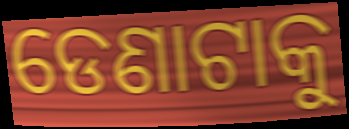
ଡେଣାଟାକୁ